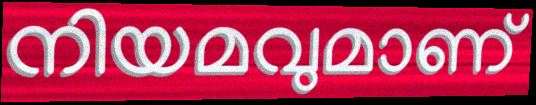
നിയമവുമാണ്